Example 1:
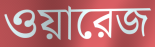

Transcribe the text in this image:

ওয়ারেজ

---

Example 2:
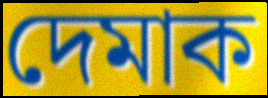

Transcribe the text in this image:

দেমাক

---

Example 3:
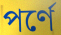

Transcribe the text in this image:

পর্ণে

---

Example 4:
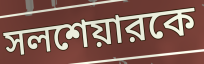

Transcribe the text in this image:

সলশেয়ারকে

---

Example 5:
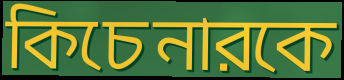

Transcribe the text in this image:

কিচেনারকে